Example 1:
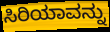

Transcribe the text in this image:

ಸಿರಿಯಾವನ್ನು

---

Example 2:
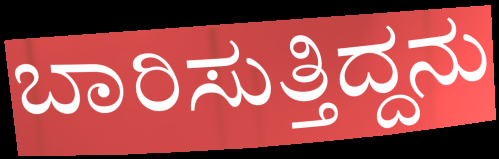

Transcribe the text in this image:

ಬಾರಿಸುತ್ತಿದ್ದನು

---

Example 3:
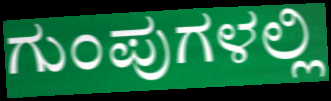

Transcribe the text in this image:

ಗುಂಪುಗಳಲ್ಲಿ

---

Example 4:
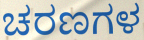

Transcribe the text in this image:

ಚರಣಗಳ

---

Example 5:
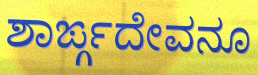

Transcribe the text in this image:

ಶಾರ್ಙ್ಗದೇವನೂ